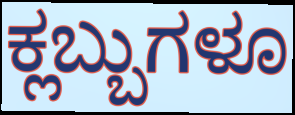
ಕ್ಲಬ್ಬುಗಳೂ